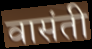
वासंती